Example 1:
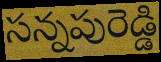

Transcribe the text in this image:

సన్నపురెడ్డి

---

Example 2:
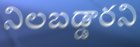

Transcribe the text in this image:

నిలబడ్డారని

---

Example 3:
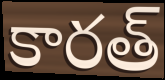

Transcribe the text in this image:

కారత్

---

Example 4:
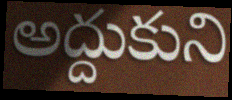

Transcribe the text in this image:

అద్దుకుని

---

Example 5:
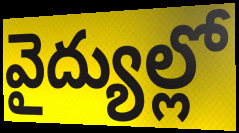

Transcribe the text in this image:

వైద్యుల్లో